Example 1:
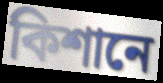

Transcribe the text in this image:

কিশানে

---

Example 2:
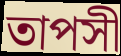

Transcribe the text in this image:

তাপসী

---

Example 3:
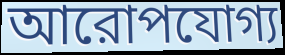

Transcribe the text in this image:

আরোপযোগ্য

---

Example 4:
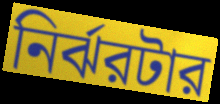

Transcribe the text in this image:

নির্ঝরটার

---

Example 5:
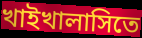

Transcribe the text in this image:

খাইখালাসিতে